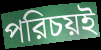
পরিচয়ই